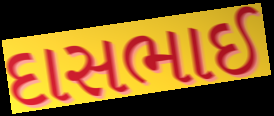
દાસભાઈ